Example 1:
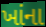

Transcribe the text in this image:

ખાંના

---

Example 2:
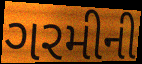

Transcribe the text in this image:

ગરમીની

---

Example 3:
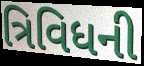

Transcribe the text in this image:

ત્રિવિધની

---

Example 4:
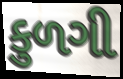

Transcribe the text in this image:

કુળગી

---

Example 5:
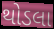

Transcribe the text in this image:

થોડલા